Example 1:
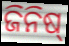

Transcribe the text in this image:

ଜିନିଷ୍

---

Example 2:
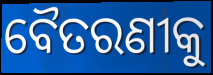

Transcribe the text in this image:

ବୈତରଣୀକୁ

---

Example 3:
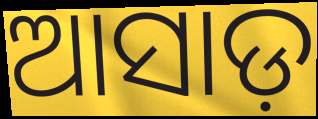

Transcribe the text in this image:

ଆସାଡ଼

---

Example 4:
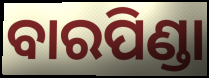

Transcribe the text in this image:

ବାରପିଣ୍ଡା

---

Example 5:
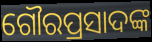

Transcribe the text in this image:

ଗୌରପ୍ରସାଦଙ୍କ